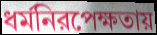
ধর্মনিরপেক্ষতায়